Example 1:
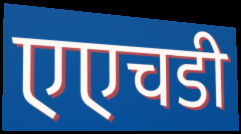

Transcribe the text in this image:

एएचडी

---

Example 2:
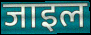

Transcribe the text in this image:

जाइल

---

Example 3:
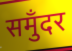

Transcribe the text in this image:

समुँदर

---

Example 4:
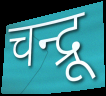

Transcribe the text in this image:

चन्द्रू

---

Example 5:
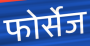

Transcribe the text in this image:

फोर्सेज